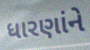
ધારણાંને